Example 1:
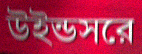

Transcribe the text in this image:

উইন্ডসরে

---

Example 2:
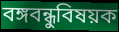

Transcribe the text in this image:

বঙ্গবন্ধুবিষয়ক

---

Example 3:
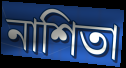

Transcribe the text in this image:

নাশিতা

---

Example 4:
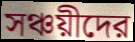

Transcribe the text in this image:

সঞ্চয়ীদের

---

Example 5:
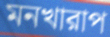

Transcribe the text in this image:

মনখারাপ